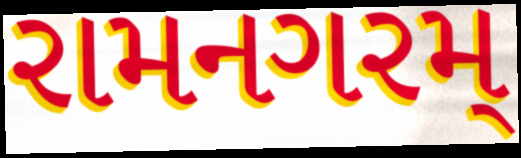
રામનગરમ્